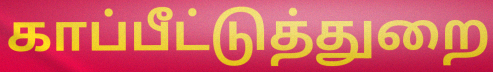
காப்பீட்டுத்துறை